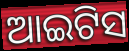
ଆଇଟିସ